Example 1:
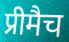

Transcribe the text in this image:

प्रीमैच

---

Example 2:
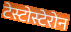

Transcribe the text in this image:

टेस्टोस्टेरोन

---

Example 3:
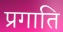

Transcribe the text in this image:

प्रगाति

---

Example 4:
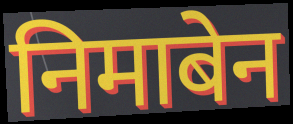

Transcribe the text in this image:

निमाबेन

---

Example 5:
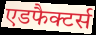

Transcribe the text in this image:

एडफैक्टर्स